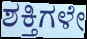
ಶಕ್ತಿಗಳೇ